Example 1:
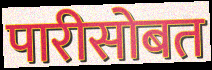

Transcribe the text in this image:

पारीसोबत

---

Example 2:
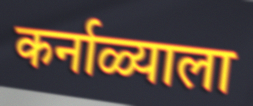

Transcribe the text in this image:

कर्नाळ्याला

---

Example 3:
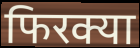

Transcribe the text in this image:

फिरक्या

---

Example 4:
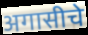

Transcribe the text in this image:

अगासीचे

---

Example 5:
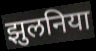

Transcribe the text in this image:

झुलनिया